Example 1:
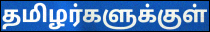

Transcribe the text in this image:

தமிழர்களுக்குள்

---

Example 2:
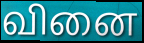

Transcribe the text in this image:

வினை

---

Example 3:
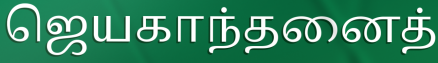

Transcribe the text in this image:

ஜெயகாந்தனைத்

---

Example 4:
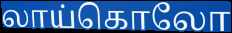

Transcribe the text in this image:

லாய்கொலோ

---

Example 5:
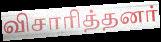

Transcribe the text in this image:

விசாரித்தனர்